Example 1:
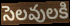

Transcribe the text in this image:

సెలవులకి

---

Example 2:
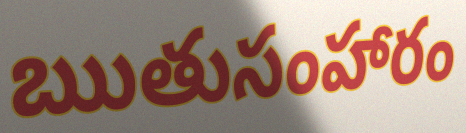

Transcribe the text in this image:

ఋతుసంహారం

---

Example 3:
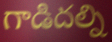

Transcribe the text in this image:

గాడిదల్ని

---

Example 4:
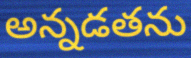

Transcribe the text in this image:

అన్నడతను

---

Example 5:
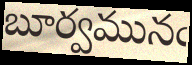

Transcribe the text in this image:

బూర్వమునఁ